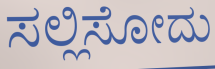
ಸಲ್ಲಿಸೋದು